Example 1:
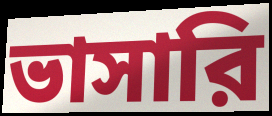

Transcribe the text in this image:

ভাসারি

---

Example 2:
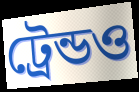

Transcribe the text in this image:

ট্রেন্ডও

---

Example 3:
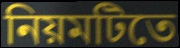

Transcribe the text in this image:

নিয়মটিতে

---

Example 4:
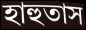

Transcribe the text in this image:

হাহুতাস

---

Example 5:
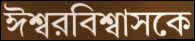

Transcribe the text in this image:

ঈশ্বরবিশ্বাসকে